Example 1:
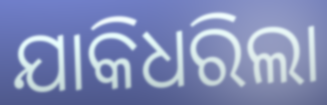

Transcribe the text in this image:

ଯାକିଧରିଲା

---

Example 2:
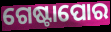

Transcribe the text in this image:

ଗେଷ୍ଟାପୋର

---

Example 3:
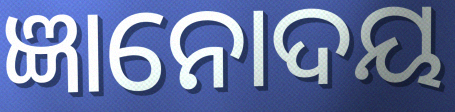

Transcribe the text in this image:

ଜ୍ଞାନୋଦୟ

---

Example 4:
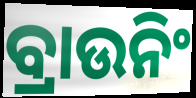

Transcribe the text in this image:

ବ୍ରାଉନିଂ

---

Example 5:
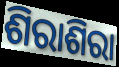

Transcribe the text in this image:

ଶିରାଶିରା